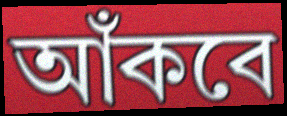
আঁকবে